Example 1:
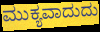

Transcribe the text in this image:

ಮುಕ್ಯವಾದುದು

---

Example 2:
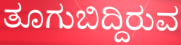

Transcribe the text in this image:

ತೂಗುಬಿದ್ದಿರುವ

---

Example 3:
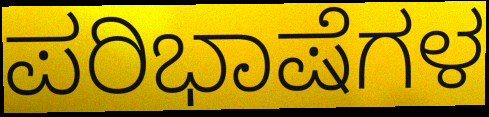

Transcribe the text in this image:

ಪರಿಭಾಷೆಗಳ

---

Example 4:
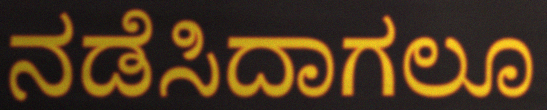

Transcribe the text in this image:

ನಡೆಸಿದಾಗಲೂ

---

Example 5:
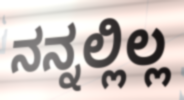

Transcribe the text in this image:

ನನ್ನಲ್ಲಿಲ್ಲ